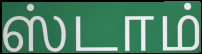
ஸ்டாம்